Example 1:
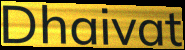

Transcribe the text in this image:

Dhaivat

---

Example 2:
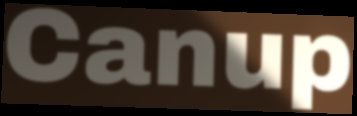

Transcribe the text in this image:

Canup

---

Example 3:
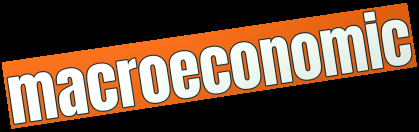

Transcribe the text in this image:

macroeconomic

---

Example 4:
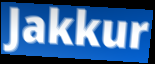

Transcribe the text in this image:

Jakkur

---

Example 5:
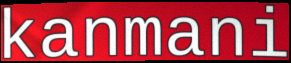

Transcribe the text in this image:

kanmani